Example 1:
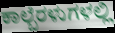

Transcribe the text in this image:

ಕಾಲ್ಬೆರಳುಗಳಲ್ಲಿ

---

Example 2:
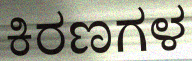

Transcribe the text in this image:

ಕಿರಣಗಳ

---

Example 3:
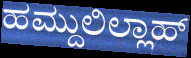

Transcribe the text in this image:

ಹಮ್ದುಲಿಲ್ಲಾಹ್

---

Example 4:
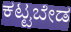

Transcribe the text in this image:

ಕಟ್ಟಬೇಡ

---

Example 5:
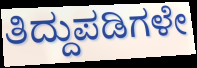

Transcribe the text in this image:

ತಿದ್ದುಪಡಿಗಳೇ